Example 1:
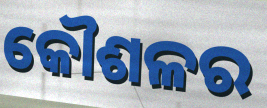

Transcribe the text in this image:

କୌଶଳର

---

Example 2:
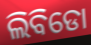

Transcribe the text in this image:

ଲିବିଡୋ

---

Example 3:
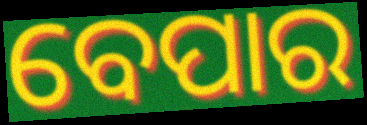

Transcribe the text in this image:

ବେପାର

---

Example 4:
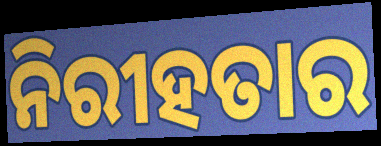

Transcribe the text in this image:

ନିରୀହତାର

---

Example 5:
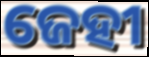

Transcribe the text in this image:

ଜେହୀ